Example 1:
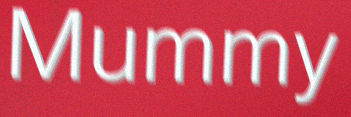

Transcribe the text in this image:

Mummy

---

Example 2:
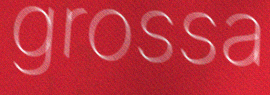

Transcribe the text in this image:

grossa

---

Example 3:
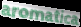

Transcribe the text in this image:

aromatica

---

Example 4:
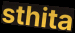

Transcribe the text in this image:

sthita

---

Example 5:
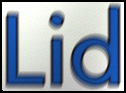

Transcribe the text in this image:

Lid